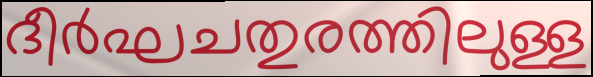
ദീർഘചതുരത്തിലുള്ള